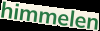
himmelen